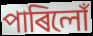
পাৰিলোঁ